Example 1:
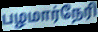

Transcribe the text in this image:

பழமார்நேரி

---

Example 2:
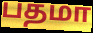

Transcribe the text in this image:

பதமா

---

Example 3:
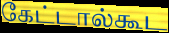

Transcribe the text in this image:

கேட்டால்கூட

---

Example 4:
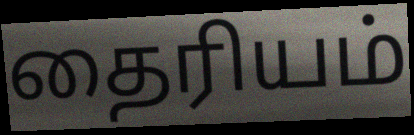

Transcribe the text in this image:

தைரியம்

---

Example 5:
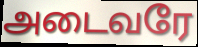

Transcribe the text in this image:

அடைவரே